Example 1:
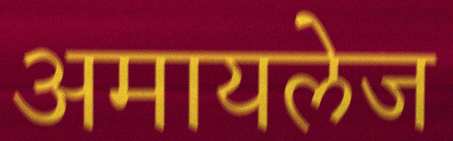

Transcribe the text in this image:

अमायलेज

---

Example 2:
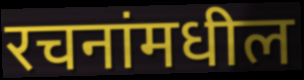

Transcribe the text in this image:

रचनांमधील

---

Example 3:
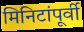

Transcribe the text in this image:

मिनिटांपूर्वी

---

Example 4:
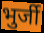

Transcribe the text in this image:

भुर्जी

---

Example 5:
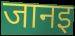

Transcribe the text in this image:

जानइ